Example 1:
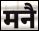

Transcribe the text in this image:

मनै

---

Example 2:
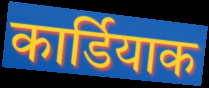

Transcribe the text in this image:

कार्डियाक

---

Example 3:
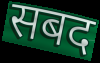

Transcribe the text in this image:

सबद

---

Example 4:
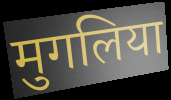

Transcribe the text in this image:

मुगलिया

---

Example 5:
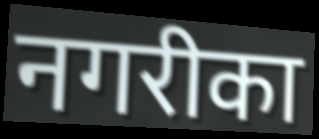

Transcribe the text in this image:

नगरीका